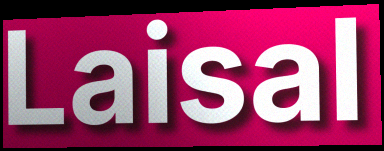
Laisal